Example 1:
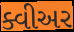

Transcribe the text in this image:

ક્વીઅર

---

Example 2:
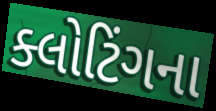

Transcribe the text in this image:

ક્લોટિંગના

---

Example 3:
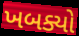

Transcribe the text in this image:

ખબક્યો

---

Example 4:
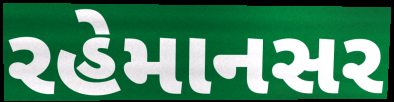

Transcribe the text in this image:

રહેમાનસર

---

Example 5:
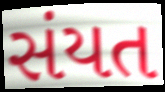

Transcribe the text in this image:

સંયત